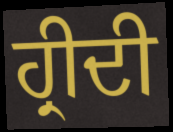
ਹ੍ਰੀਦੀ